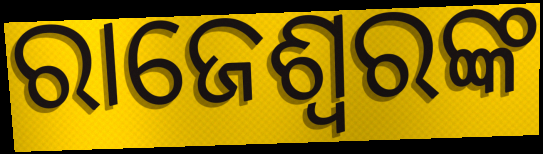
ରାଜେଶ୍ୱରଙ୍କ